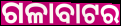
ଗଳାବାଟର